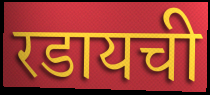
रडायची